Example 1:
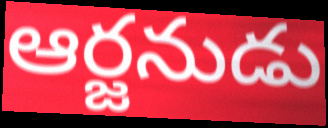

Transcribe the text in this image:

ఆర్జనుడు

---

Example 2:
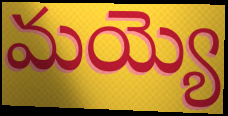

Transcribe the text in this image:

మయ్యె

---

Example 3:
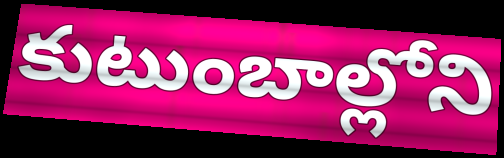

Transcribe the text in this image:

కుటుంబాల్లోని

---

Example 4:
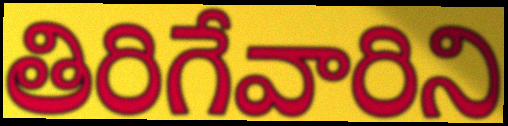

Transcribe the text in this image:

తిరిగేవారిని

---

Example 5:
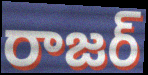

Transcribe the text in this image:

రాజర్